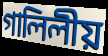
গালিলীয়